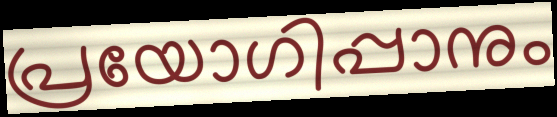
പ്രയോഗിപ്പാനും